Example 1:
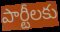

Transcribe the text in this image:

పార్టీలకు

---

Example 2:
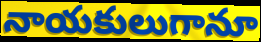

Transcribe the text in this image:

నాయకులుగానూ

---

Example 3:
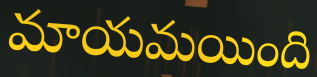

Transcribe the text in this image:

మాయమయింది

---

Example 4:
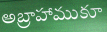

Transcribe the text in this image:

అబ్రాహాముకూ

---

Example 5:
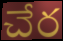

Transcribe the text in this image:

చేర